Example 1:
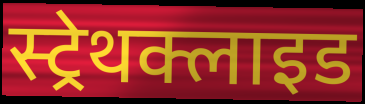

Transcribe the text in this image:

स्ट्रेथक्लाइड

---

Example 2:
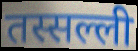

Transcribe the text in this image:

तस्सल्ली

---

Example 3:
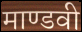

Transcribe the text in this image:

माण्डवी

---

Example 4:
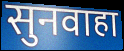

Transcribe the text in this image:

सुनवाहा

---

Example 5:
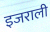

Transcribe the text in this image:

इजराली